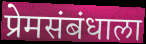
प्रेमसंबंधाला